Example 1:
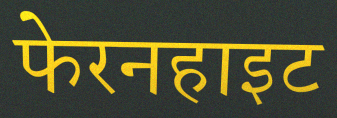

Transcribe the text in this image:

फेरनहाइट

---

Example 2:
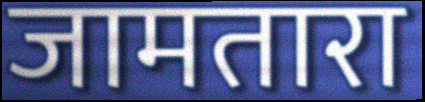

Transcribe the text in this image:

जामतारा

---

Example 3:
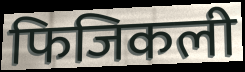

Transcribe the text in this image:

फिजिकली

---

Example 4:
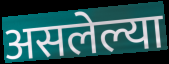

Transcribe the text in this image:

असलेल्या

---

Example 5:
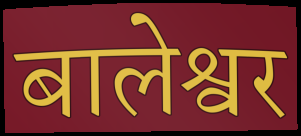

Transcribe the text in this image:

बालेश्वर